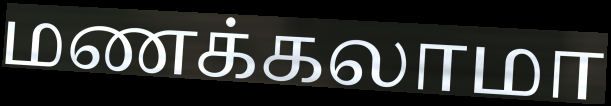
மணக்கலாமா